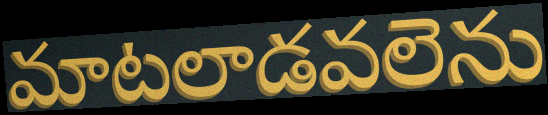
మాటలాడవలెను